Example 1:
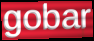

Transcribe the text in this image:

gobar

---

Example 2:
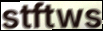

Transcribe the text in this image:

stftws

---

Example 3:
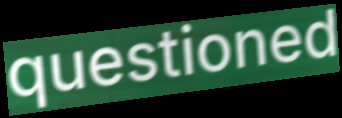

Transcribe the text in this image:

questioned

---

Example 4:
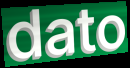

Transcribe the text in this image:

dato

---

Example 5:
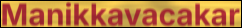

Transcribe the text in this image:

Manikkavacakar